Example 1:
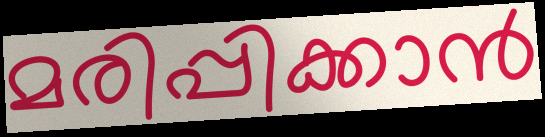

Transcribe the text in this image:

മരിപ്പിക്കാൻ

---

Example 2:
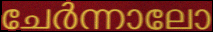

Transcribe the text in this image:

ചേർന്നാലോ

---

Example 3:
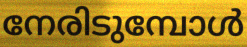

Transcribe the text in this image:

നേരിടുമ്പോൾ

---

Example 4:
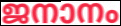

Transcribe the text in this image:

ജനാനം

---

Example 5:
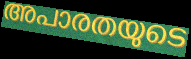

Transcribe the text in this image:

അപാരതയുടെ